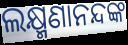
ଲକ୍ଷ୍ମଣାନନ୍ଦଙ୍କ